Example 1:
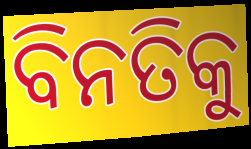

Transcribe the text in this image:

ବିନତିକୁ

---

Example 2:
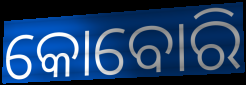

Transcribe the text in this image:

କୋବୋରି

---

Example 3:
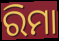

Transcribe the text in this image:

ରିମା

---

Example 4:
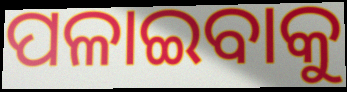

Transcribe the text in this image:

ପଳାଇବାକୁ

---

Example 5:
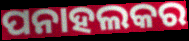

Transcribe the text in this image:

ପନାହଲକର